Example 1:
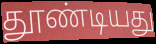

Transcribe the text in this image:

தூண்டியது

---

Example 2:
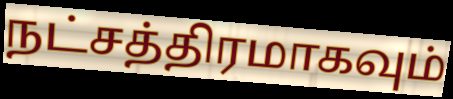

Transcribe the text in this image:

நட்சத்திரமாகவும்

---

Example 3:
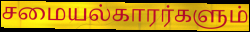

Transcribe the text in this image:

சமையல்காரர்களும்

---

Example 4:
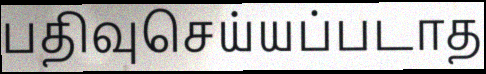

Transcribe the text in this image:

பதிவுசெய்யப்படாத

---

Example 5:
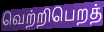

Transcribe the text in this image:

வெற்றிபெறத்